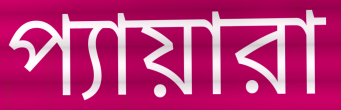
প্যায়ারা